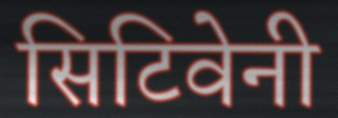
सिटिवेनी